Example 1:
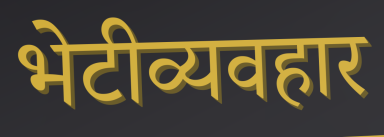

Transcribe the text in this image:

भेटीव्यवहार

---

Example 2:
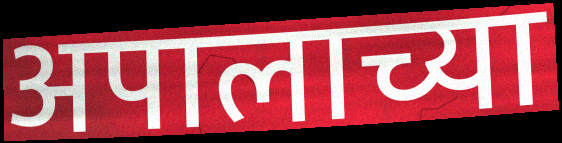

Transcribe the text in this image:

अपालाच्या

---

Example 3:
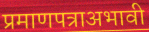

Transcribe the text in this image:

प्रमाणपत्राअभावी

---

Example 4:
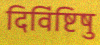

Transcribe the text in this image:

दिवि॑ष्टिषु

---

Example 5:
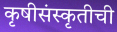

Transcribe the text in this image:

कृषीसंस्कृतीची